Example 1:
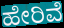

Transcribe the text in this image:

ಹೇರಿವೆ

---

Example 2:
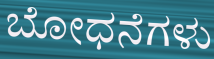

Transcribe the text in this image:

ಬೋಧನೆಗಳು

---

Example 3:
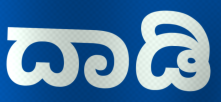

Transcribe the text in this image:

ದಾಡಿ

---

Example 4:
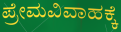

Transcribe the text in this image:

ಪ್ರೇಮವಿವಾಹಕ್ಕೆ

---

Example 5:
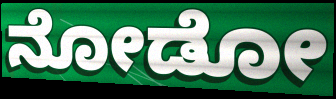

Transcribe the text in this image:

ನೋಡೋ